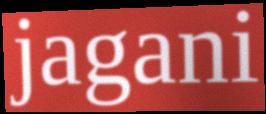
jagani